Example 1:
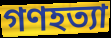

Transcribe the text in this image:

গণহত্যা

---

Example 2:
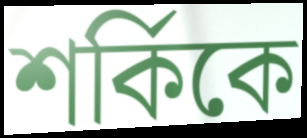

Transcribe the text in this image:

শর্কিকে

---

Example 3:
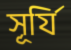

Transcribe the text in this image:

সূর্যি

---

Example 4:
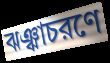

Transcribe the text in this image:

ঝঞ্ঝাচরণে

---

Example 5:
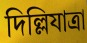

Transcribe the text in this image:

দিল্লিযাত্রা